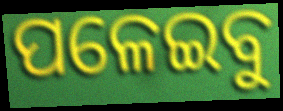
ପଳେଇବୁ